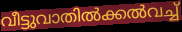
വീട്ടുവാതിൽക്കൽവച്ച്